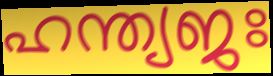
ഹന്ത്യജഃ